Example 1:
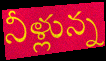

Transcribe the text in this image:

నీళ్లున్న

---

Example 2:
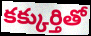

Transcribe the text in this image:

కక్కుర్తితో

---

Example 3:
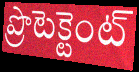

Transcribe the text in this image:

ప్రొటెక్టెంట్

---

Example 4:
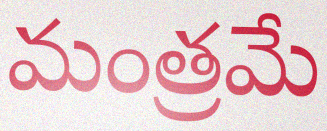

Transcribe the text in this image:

మంత్రమే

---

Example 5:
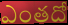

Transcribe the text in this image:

ఎంతదో